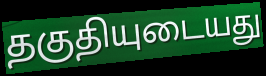
தகுதியுடையது